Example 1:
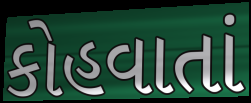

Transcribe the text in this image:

કોહવાતાં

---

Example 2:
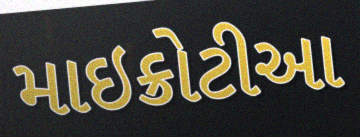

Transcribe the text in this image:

માઇક્રોટીઆ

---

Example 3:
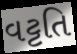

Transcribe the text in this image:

વટ્ટતિ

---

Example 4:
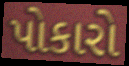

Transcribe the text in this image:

પોકારો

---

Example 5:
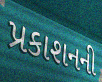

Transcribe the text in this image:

પ્રકાશનની